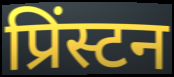
प्रिंस्टन